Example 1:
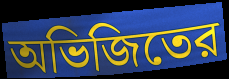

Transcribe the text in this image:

অভিজিতের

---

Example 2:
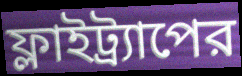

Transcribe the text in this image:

ফ্লাইট্র্যাপের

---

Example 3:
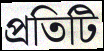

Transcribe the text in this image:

প্রতিটি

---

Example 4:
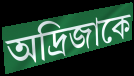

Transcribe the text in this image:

অদ্রিজাকে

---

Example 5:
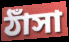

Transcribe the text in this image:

ঠাঁসা